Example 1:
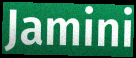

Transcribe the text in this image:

Jamini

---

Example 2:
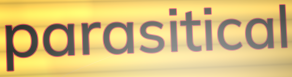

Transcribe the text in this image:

parasitical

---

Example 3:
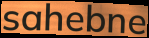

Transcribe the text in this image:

sahebne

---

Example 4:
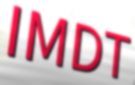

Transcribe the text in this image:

IMDT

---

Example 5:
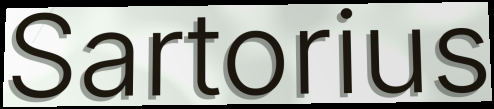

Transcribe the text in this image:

Sartorius